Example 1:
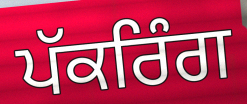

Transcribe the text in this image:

ਪੱਕਰਿੰਗ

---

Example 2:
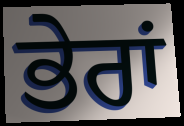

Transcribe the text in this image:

ਭੇਰਾਂ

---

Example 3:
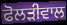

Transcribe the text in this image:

ਫੋਲੜੀਵਾਲ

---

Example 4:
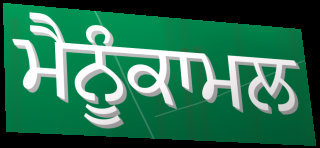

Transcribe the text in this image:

ਮੈਨੂੰਕਾਮਲ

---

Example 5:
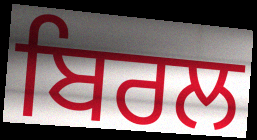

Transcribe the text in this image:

ਬਿਰਲ